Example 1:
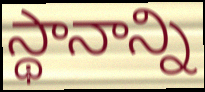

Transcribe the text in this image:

స్థానాన్ని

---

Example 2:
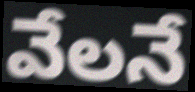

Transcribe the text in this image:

వేలనే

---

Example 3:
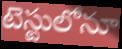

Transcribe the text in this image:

టెస్టులోనూ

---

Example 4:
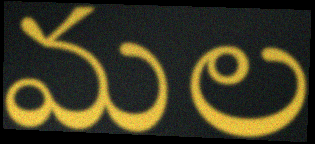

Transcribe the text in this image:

మల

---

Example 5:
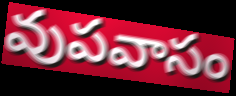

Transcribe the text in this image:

వుపవాసం